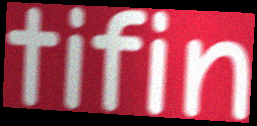
tifin